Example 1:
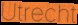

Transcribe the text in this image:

Utrecht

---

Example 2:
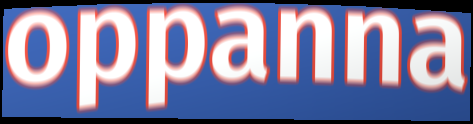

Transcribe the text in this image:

oppanna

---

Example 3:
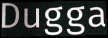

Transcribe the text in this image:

Dugga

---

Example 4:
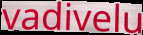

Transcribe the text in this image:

vadivelu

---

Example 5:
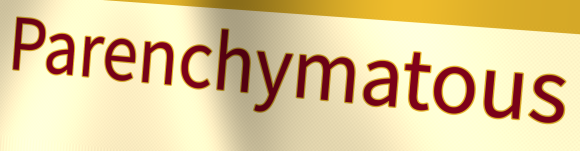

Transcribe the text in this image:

Parenchymatous